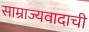
साम्राज्यवादाची